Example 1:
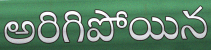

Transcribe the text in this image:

అరిగిపోయిన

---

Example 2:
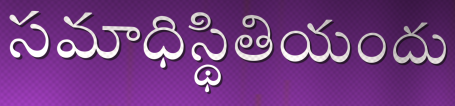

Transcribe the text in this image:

సమాధిస్థితియందు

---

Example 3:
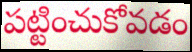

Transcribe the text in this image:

పట్టించుకోవడం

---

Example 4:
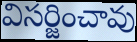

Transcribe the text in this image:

విసర్జించావు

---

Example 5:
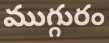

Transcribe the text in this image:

ముగ్గురం